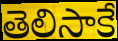
తెలిసాకే